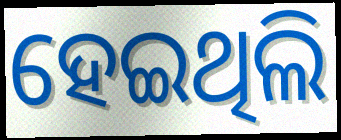
ହେଇଥିଲି